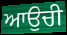
ਆਉਚੀ